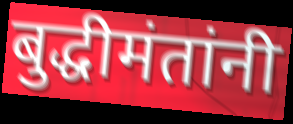
बुद्धीमंतांनी